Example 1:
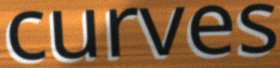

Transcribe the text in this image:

curves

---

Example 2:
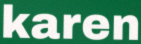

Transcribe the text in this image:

karen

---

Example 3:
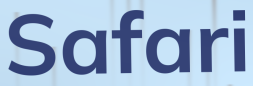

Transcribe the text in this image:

Safari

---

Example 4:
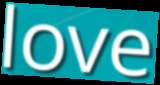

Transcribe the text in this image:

love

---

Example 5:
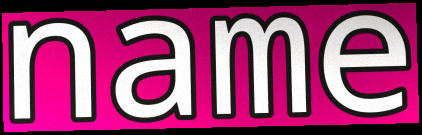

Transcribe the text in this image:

name